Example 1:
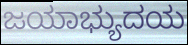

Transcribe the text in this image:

ಜಯಾಭ್ಯುದಯ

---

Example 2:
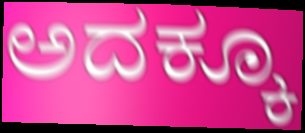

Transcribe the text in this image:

ಅದಕ್ಕೂ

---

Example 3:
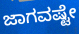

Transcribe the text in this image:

ಜಾಗವಷ್ಟೇ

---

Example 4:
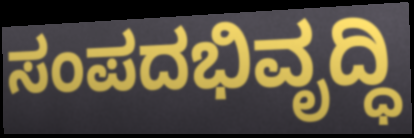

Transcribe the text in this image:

ಸಂಪದಭಿವೃದ್ಧಿ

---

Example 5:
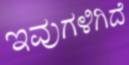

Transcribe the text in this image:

ಇವುಗಳಿಗಿದೆ